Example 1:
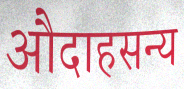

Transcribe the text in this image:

औदाहसन्य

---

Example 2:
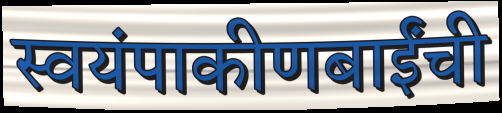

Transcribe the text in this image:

स्वयंपाकीणबाईंची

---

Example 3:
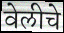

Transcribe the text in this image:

वेलीचे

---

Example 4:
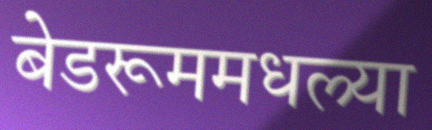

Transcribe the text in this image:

बेडरूममधल्या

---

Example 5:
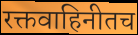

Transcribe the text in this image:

रक्तवाहिनीतच